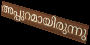
അപ്പുറമായിരുന്നു